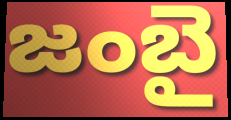
జంబై